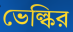
ভেল্কির